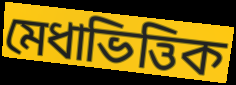
মেধাভিত্তিক